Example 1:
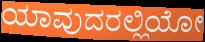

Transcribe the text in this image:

ಯಾವುದರಲ್ಲಿಯೋ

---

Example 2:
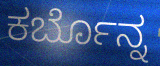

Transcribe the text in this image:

ಕರ್ಬೊನ್ನ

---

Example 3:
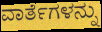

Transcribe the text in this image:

ವಾರ್ತೆಗಳನ್ನು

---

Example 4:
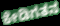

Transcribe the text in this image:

ಕೇಡಿಗತನ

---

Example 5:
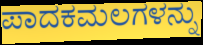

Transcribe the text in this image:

ಪಾದಕಮಲಗಳನ್ನು